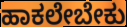
ಹಾಕಲೇಬೇಕು